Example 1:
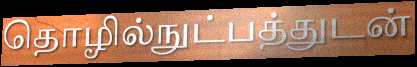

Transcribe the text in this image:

தொழில்நுட்பத்துடன்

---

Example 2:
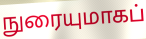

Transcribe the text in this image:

நுரையுமாகப்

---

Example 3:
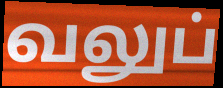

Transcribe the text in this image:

வலுப்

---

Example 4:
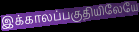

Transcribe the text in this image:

இக்காலப்பகுதியிலேயே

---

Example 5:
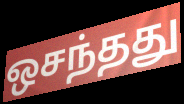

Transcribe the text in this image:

ஒசந்தது